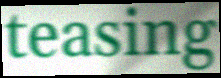
teasing